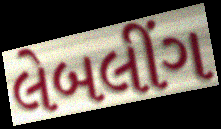
લેબલીંગ